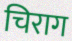
चिराग